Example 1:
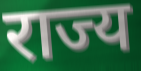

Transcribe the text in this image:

राज्य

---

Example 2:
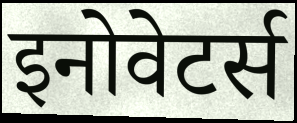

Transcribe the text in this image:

इनोवेटर्स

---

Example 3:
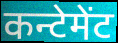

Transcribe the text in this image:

कन्टेमेंट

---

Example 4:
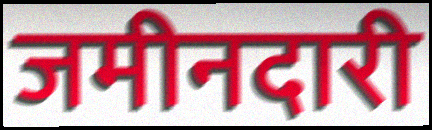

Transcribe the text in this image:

जमीनदारी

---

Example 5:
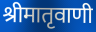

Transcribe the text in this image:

श्रीमातृवाणी